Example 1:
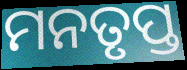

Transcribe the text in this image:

ମନତୃପ୍ତ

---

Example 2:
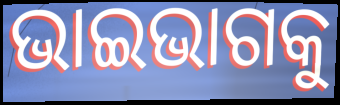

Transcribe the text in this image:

ଭାଇଭାଗକୁ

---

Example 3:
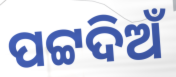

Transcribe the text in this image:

ପଟ୍ଟଦିଅଁ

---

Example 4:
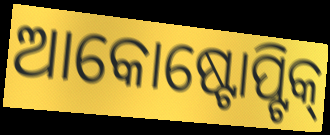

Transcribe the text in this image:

ଆକୋଷ୍ଟୋପ୍ଟିକ୍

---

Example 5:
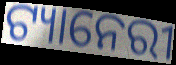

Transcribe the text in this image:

ଟ୍ୟାନେରୀ